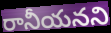
రానీయనని